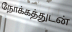
நோக்கத்துடன்